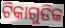
ଟିକାଗୁଡିକ